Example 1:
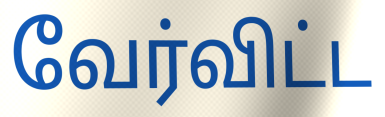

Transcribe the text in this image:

வேர்விட்ட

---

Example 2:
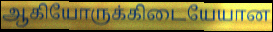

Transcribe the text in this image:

ஆகியோருக்கிடையேயான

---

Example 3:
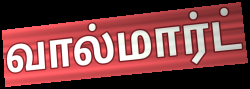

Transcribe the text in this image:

வால்மார்ட்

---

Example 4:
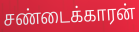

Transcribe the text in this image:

சண்டைக்காரன்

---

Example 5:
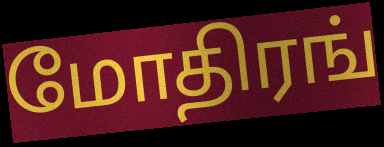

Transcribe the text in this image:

மோதிரங்